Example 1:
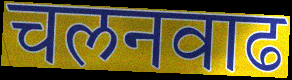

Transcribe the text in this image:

चलनवाढ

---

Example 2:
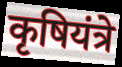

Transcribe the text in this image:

कृषियंत्रे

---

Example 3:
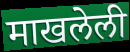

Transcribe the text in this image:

माखलेली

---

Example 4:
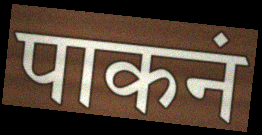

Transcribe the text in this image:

पाकनं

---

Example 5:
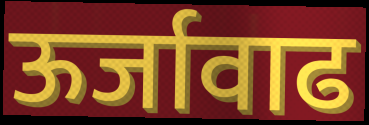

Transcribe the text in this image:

ऊर्जावाढ